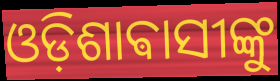
ଓଡ଼ିଶାଵାସୀଙ୍କୁ